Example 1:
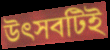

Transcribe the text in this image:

উৎসবটিই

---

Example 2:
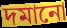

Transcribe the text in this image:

দমানো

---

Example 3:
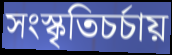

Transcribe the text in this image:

সংস্কৃতিচর্চায়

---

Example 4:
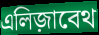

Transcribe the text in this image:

এলিজ়াবেথ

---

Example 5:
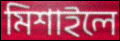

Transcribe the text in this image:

মিশাইলে